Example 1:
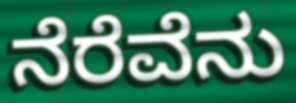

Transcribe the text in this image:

ನೆರೆವೆನು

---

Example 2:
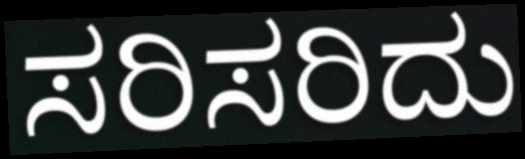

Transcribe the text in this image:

ಸರಿಸರಿದು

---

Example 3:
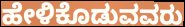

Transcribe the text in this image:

ಹೇಳಿಕೊಡುವವರು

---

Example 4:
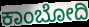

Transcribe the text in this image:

ಕಾಂಬೋದಿ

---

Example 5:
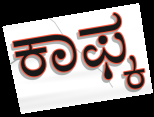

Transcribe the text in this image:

ಕಾಫ್ಕ